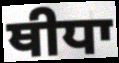
ਥੀਧਾ